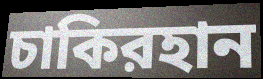
চাকিরহান